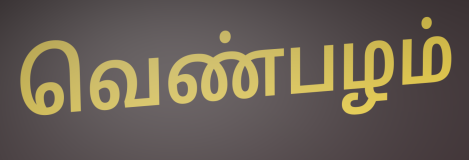
வெண்பழம்